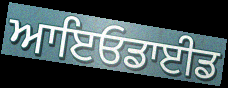
ਆਇਓਡਾਈਡ